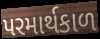
પરમાર્થકાળ